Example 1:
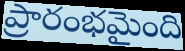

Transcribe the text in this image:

ప్రారంభమైంది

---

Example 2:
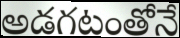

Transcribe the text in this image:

అడగటంతోనే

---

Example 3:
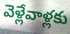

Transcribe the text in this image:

వెళ్లేవాళ్లకు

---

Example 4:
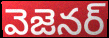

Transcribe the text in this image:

వెజెనర్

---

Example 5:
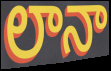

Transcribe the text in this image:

లానా